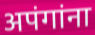
अपंगांना